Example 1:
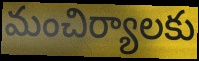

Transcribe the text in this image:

మంచిర్యాలకు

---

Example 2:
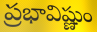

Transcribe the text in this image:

ప్రభావిష్ణుం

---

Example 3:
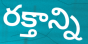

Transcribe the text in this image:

రక్తాన్ని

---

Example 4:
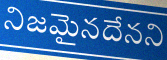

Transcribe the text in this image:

నిజమైనదేనని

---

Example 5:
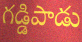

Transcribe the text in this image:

గడ్డిపాడు